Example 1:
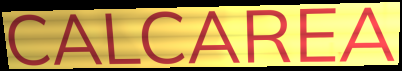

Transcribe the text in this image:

CALCAREA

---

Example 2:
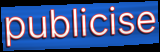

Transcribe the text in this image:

publicise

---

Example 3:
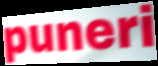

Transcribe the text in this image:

puneri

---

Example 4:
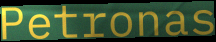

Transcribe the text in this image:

Petronas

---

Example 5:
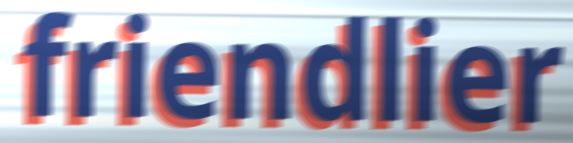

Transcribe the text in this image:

friendlier